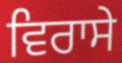
ਵਿਰਾਸੇ